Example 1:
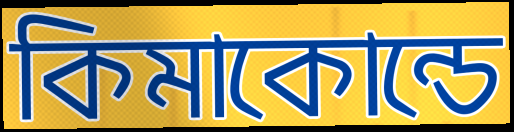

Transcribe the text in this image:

কিমাকোন্ডে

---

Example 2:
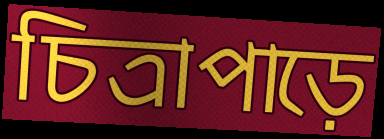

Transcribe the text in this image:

চিত্রাপাড়ে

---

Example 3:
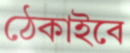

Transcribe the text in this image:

ঠেকাইবে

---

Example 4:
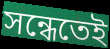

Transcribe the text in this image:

সন্ধেতেই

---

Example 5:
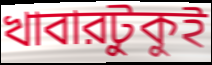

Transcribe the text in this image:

খাবারটুকুই